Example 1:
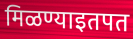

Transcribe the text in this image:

मिळण्याइतपत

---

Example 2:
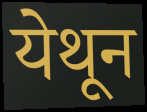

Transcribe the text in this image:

येथून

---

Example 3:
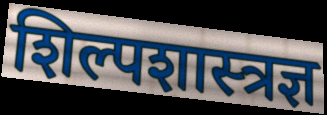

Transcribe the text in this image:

शिल्पशास्त्रज्ञ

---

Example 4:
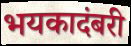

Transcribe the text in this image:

भयकादंबरी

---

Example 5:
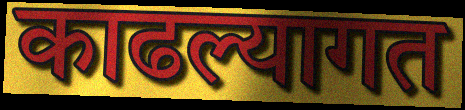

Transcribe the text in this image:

काढल्यागत